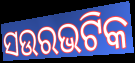
ସଉରଭଟିକ